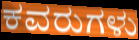
ಕವರುಗಳು